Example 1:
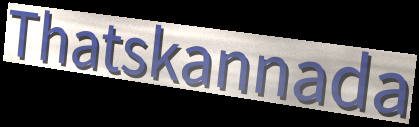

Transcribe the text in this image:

Thatskannada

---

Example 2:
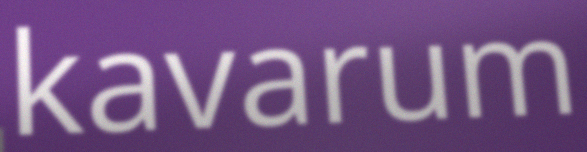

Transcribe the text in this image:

kavarum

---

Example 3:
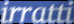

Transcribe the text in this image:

irratti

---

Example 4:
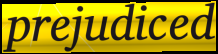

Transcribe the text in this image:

prejudiced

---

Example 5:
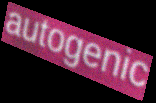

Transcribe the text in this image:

autogenic